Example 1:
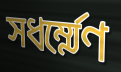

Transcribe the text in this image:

সধর্ম্মেণ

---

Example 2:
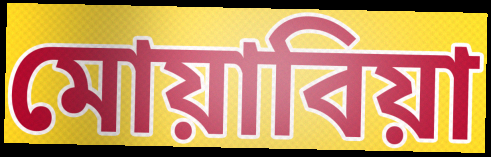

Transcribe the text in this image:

মোয়াবিয়া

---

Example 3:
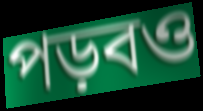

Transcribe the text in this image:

পড়বও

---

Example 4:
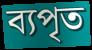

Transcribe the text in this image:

ব্যপৃত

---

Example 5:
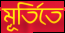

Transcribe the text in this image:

মূর্তিতে